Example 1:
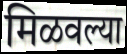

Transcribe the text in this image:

मिळवल्या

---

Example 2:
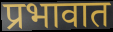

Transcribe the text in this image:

प्रभावात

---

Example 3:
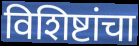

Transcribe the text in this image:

विशिष्टांचा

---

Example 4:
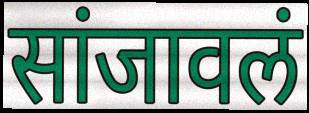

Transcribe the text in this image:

सांजावलं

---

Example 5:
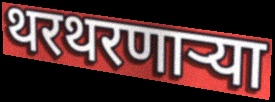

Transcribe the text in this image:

थरथरणाऱ्या